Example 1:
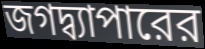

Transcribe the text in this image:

জগদ্ব্যাপারের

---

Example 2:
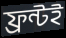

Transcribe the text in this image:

ফ্রন্টই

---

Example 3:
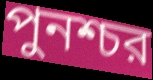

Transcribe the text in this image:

পুনশ্চর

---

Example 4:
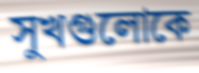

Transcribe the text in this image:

সুখগুলোকে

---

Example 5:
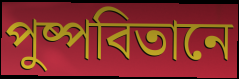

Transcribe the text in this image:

পুষ্পবিতানে